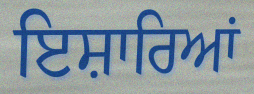
ਇਸ਼ਾਰਿਆਂ